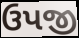
ઉપજી